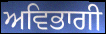
ਅਵਿਭਾਗੀ